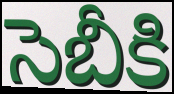
సెబీకి